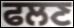
ਫਲਣ